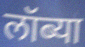
लॉब्या